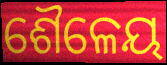
ଶୈଳେୟ